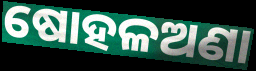
ଷୋହଳଅଣା